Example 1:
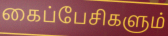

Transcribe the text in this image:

கைப்பேசிகளும்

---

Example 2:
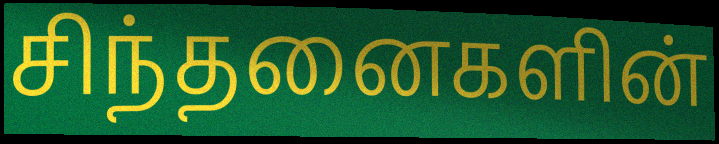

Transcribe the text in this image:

சிந்தனைகளின்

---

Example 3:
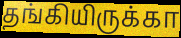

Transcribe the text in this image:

தங்கியிருக்கா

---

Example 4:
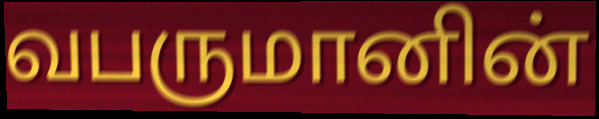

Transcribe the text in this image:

வபருமானின்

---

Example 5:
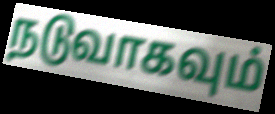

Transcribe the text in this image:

நடுவாகவும்